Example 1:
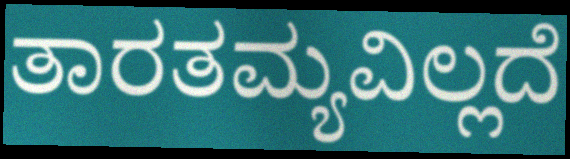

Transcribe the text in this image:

ತಾರತಮ್ಯವಿಲ್ಲದೆ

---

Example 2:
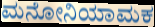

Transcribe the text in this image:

ಮನೋನಿಯಾಮಕ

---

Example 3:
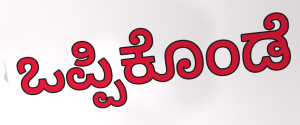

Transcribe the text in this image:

ಒಪ್ಪಿಕೊಂಡೆ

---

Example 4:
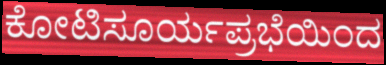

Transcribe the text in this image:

ಕೋಟಿಸೂರ್ಯಪ್ರಭೆಯಿಂದ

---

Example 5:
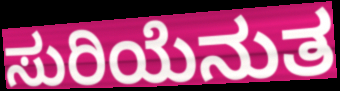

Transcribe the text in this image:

ಸುರಿಯೆನುತ